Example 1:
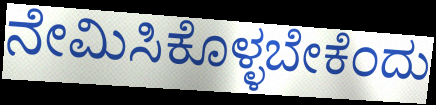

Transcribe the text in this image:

ನೇಮಿಸಿಕೊಳ್ಳಬೇಕೆಂದು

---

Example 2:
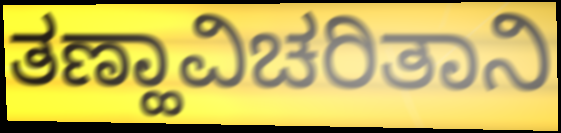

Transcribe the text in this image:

ತಣ್ಹಾವಿಚರಿತಾನಿ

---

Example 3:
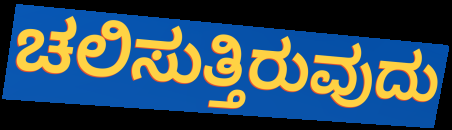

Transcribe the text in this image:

ಚಲಿಸುತ್ತಿರುವುದು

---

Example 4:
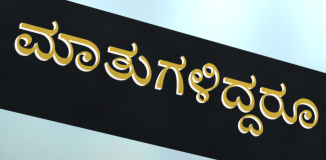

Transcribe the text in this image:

ಮಾತುಗಳಿದ್ದರೂ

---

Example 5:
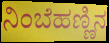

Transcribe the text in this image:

ನಿಂಬೆಹಣ್ಣಿನ